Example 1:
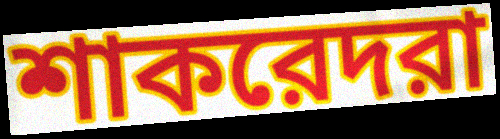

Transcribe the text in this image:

শাকরেদরা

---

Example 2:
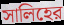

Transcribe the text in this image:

সালিহের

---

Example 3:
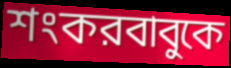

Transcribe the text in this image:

শংকরবাবুকে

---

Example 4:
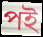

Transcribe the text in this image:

পই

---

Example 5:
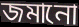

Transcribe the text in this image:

জমানো